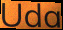
Uda